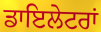
ਡਾਇਲੇਟਰਾਂ